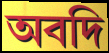
অবদি